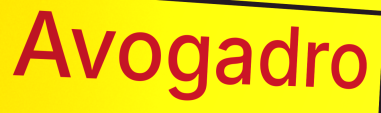
Avogadro